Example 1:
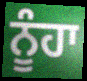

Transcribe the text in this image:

ਨੂੰਹਾ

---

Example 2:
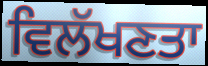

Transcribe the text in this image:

ਵਿਲੱਖਣਤਾ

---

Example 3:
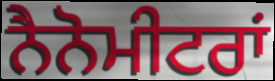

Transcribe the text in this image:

ਨੈਨੋਮੀਟਰਾਂ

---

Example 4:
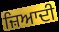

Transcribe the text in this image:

ਜ਼ਿਆਦੀ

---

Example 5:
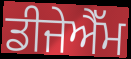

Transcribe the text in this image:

ਡੀਜੇਐੱਮ